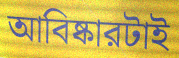
আবিষ্কারটাই